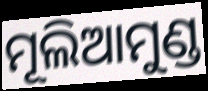
ମୂଲିଆମୁଣ୍ଡ